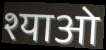
श्याओ